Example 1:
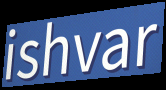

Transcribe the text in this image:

ishvar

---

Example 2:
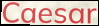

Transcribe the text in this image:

Caesar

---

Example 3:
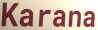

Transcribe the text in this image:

Karana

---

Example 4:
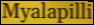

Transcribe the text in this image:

Myalapilli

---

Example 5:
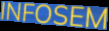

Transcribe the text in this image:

INFOSEM